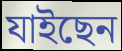
যাইছেন